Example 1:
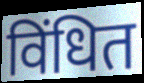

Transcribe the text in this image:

विंधित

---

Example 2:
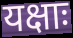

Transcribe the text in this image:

यक्षाः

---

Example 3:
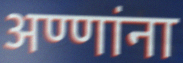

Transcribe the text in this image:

अण्णांना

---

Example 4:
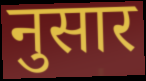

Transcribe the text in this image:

नुसार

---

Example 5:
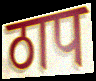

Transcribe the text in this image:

ठाप